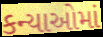
કન્યાઓમાં